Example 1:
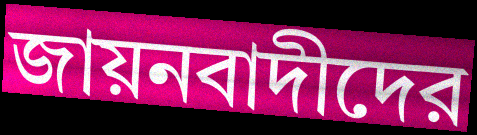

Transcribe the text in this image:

জায়নবাদীদের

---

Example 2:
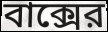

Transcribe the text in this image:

বাক্সের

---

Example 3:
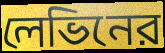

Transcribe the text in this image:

লেভিনের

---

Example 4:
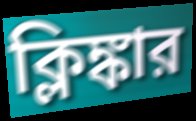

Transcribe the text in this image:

ক্লিঙ্কার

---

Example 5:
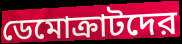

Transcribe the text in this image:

ডেমোক্রাটদের